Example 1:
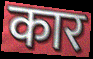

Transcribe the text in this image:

कार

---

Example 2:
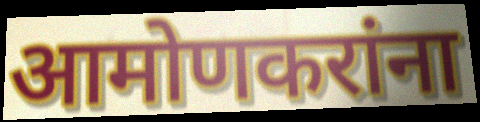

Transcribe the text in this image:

आमोणकरांना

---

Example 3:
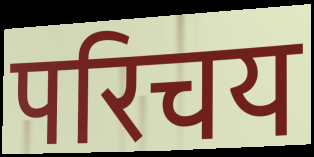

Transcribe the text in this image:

परिचय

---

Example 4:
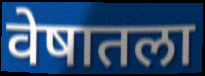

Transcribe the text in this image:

वेषातला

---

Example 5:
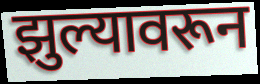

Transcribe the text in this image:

झुल्यावरून